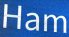
Ham